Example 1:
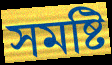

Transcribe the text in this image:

সমষ্টি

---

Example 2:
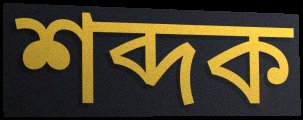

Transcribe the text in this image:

শব্দক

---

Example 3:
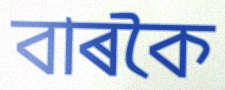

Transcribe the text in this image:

বাৰকৈ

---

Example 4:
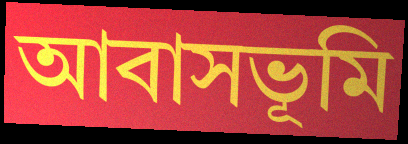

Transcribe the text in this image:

আবাসভূমি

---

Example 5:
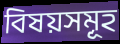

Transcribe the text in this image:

বিষয়সমূহ